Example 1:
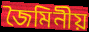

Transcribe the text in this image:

জৈমিনীয়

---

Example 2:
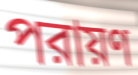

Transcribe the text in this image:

পরায়ণ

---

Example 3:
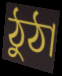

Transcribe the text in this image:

ঠুঠা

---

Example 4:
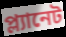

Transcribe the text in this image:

প্ল্যানেট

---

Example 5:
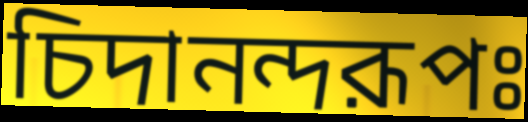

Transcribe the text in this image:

চিদানন্দরূপঃ